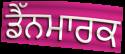
ਡੈੱਨਮਾਰਕ